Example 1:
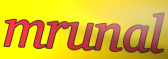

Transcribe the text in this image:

mrunal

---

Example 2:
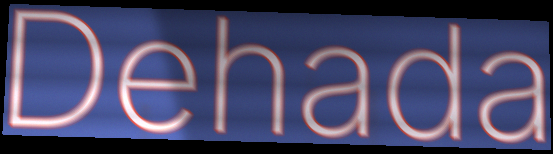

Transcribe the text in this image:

Dehada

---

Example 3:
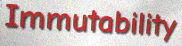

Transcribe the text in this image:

Immutability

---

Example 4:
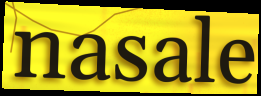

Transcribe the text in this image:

nasale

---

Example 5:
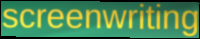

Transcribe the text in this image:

screenwriting